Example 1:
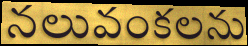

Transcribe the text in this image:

నలువంకలను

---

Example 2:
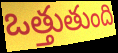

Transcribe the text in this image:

ఒత్తుతుంది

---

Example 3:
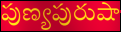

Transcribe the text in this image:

పుణ్యపురుషా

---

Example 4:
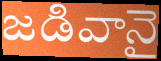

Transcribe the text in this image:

జడివానై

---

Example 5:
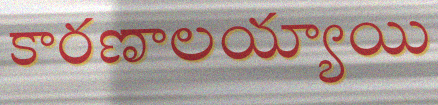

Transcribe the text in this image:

కారణాలయ్యాయి